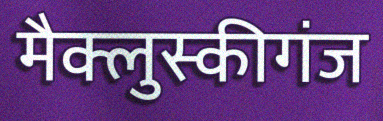
मैक्लुस्कीगंज